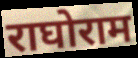
राघोराम